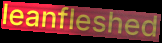
leanfleshed